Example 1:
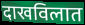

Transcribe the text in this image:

दाखविलात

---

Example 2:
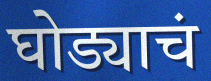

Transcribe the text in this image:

घोड्याचं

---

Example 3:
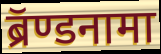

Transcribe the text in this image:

ब्रॅण्डनामा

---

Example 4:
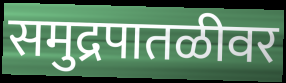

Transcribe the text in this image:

समुद्रपातळीवर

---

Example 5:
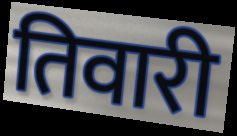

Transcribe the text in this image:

तिवारी